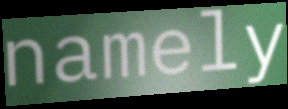
namely